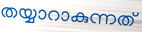
തയ്യാറാകുന്നത്